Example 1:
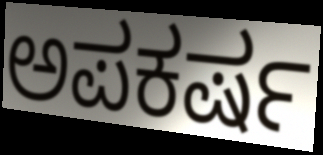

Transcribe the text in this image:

ಅಪಕರ್ಷ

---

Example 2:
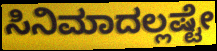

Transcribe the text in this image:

ಸಿನಿಮಾದಲ್ಲಷ್ಟೇ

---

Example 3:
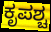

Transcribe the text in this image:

ಕೃಪಶ್ಚ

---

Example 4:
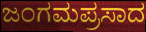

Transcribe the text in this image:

ಜಂಗಮಪ್ರಸಾದ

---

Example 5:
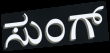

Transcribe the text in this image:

ಸುಂಗ್